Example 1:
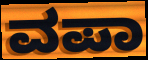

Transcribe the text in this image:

ವಪಾ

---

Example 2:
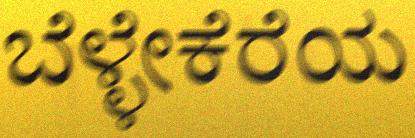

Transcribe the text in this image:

ಬೆಳ್ಳೇಕೆರೆಯ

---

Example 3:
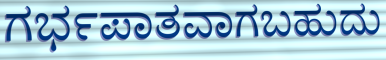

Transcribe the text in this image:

ಗರ್ಭಪಾತವಾಗಬಹುದು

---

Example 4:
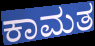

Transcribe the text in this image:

ಕಾಮತ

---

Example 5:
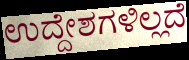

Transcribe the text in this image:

ಉದ್ದೇಶಗಳಿಲ್ಲದೆ